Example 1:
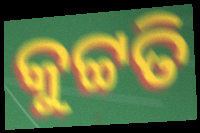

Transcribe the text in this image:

କୁଟ୍ଟତି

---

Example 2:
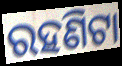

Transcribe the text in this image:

ରହଣିଟା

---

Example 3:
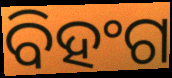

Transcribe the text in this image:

ବିହଂଗ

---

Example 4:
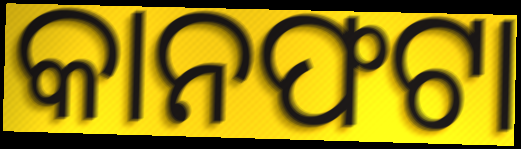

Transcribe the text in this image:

କାନଫଟା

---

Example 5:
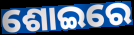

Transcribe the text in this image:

ଶୋଇରେ